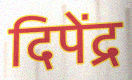
दिपेंद्र